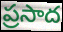
ప్రసాద